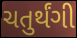
ચતુર્થંગી